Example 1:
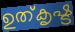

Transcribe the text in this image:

ഉത്കൃഷ്ട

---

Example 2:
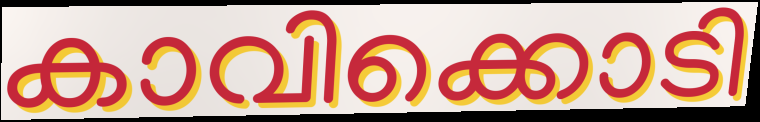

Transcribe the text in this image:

കാവിക്കൊടി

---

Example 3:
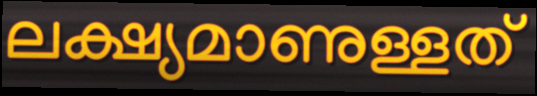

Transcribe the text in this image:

ലക്ഷ്യമാണുള്ളത്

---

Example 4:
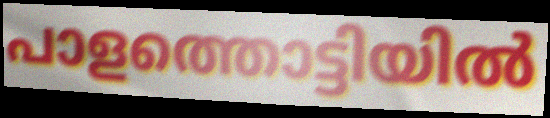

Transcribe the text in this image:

പാളത്തൊട്ടിയിൽ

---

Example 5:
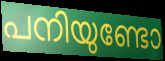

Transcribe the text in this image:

പനിയുണ്ടോ